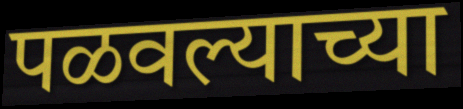
पळवल्याच्या